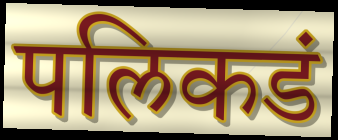
पलिकडं